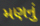
મણનું